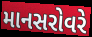
માનસરોવરે